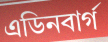
এডিনবাৰ্গ